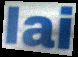
Iai